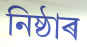
নিষ্ঠাৰ